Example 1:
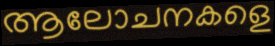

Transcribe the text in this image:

ആലോചനകളെ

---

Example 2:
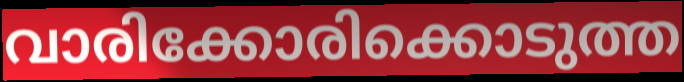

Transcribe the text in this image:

വാരിക്കോരിക്കൊടുത്ത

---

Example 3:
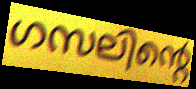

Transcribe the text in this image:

ഗസലിന്റെ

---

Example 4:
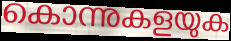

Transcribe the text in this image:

കൊന്നുകളയുക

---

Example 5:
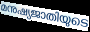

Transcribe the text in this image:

മനുഷ്യജാതിയുടെ